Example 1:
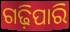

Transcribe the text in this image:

ଗଢ଼ିପାରି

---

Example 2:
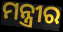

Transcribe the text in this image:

ମନ୍ତ୍ରୀର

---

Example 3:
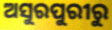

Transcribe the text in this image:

ଅସୁରପୁରୀରୁ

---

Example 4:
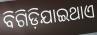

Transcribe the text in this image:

ବିଗିଡ଼ିଯାଇଥାଏ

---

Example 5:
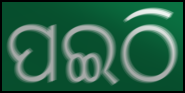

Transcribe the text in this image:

ପଇଠି